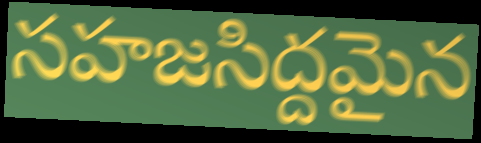
సహజసిద్దమైన